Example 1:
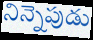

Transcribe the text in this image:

నిన్నెపుడు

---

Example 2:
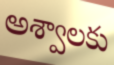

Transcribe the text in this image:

అశ్వాలకు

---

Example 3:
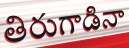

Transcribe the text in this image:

తిరుగాడినా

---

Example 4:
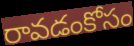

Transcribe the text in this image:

రావడంకోసం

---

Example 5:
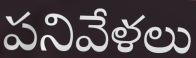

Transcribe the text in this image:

పనివేళలు